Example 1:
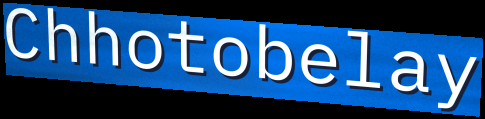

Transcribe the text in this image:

Chhotobelay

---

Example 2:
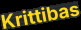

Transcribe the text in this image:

Krittibas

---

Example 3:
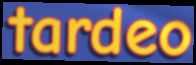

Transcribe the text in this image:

tardeo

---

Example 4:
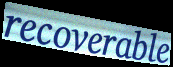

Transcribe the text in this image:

recoverable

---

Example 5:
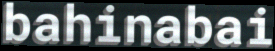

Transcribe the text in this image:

bahinabai